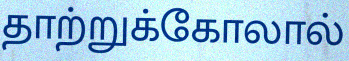
தாற்றுக்கோலால்